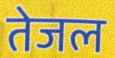
तेजल